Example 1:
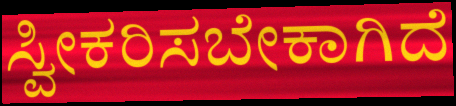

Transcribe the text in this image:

ಸ್ವೀಕರಿಸಬೇಕಾಗಿದೆ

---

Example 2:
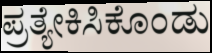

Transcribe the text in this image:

ಪ್ರತ್ಯೇಕಿಸಿಕೊಂಡು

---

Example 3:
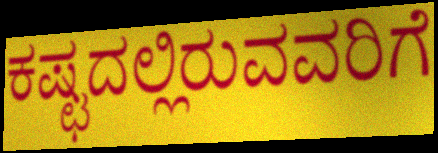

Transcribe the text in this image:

ಕಷ್ಟದಲ್ಲಿರುವವರಿಗೆ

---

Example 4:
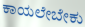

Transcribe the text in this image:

ಕಾಯಲೇಬೇಕು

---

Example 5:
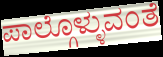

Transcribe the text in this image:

ಪಾಲ್ಗೊಳ್ಳುವಂತೆ